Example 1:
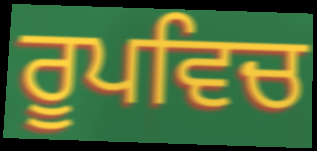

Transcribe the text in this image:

ਰੂਪਵਿਚ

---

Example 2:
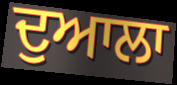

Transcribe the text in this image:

ਦੁਆਲਾ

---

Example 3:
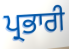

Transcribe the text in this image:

ਪ੍ਰਭਾਰੀ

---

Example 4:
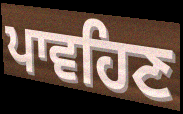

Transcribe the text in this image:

ਪਾਵਹਿਣ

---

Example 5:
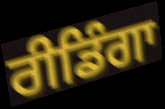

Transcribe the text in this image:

ਰੀਡਿੰਗਾ